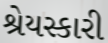
શ્રેયસ્કારી